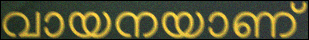
വായനയാണ്